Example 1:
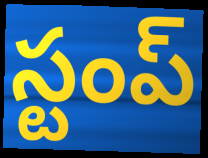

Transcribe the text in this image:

స్టంప్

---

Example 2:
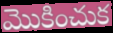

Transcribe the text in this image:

మొకించుక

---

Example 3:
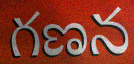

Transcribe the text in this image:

గణన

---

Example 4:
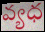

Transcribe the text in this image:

వ్యధ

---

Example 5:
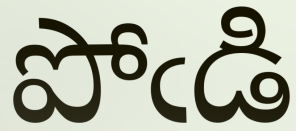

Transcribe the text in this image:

పోఁడి